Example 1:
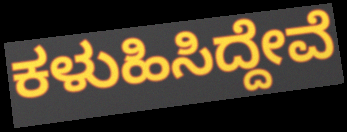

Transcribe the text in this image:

ಕಳುಹಿಸಿದ್ದೇವೆ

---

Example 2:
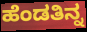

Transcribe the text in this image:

ಹೆಂಡತಿನ್ನ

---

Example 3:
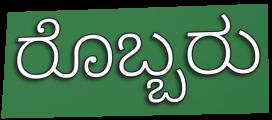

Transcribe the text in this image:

ರೊಬ್ಬರು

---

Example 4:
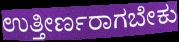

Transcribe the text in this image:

ಉತ್ತೀರ್ಣರಾಗಬೇಕು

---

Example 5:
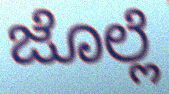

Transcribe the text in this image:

ಜೊಲ್ಲೆ